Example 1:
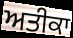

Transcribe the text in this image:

ਅਤੀਕਾ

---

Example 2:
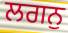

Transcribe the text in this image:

ਲਗਨੁ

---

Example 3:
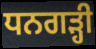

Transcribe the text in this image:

ਧਨਗੜ੍ਹੀ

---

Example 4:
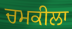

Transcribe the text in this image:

ਚਮਕੀਲਾ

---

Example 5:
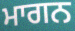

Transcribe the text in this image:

ਮਾਗਨ